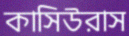
কাসিউরাস